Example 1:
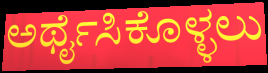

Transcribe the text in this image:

ಅರ್ಥೈಸಿಕೊಳ್ಳಲು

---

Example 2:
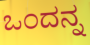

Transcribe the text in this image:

ಒಂದನ್ನ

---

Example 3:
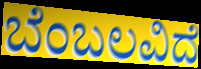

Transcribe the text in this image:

ಬೆಂಬಲವಿದೆ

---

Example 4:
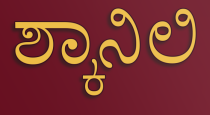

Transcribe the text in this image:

ಶ್ಕಾನಿಲಿ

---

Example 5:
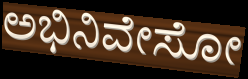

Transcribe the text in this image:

ಅಭಿನಿವೇಸೋ